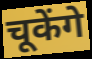
चूकेंगे